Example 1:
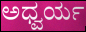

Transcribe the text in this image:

ಅಧ್ವರ್ಯ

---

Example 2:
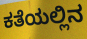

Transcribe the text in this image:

ಕತೆಯಲ್ಲಿನ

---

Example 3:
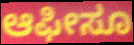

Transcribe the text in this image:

ಆಫೀಸೂ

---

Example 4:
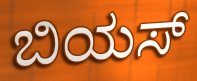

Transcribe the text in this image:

ಬಿಯಸ್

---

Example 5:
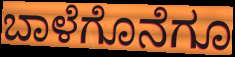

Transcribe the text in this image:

ಬಾಳೆಗೊನೆಗೂ